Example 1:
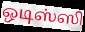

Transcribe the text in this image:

ஒடிஸ்ஸி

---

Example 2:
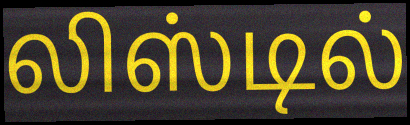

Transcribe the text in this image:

லிஸ்டில்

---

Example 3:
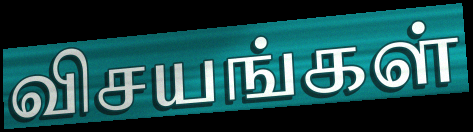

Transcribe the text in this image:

விசயங்கள்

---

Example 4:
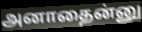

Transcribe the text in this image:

அனாதைன்னு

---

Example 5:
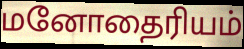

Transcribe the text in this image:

மனோதைரியம்